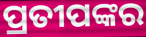
ପ୍ରତୀପଙ୍କର